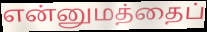
என்னுமத்தைப்